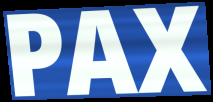
PAX